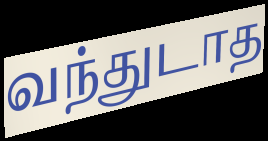
வந்துடாத